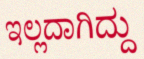
ಇಲ್ಲದಾಗಿದ್ದು